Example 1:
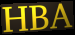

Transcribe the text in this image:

HBA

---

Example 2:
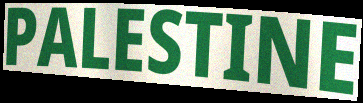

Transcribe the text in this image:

PALESTINE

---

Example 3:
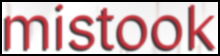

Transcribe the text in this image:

mistook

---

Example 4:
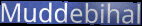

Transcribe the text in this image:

Muddebihal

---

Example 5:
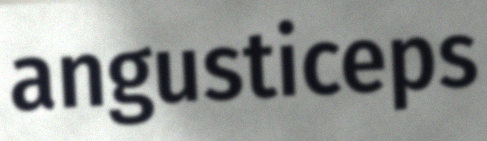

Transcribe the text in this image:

angusticeps